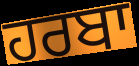
ਹਰਬਾ